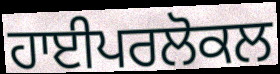
ਹਾਈਪਰਲੋਕਲ